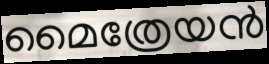
മൈത്രേയൻ